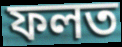
ফলত